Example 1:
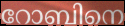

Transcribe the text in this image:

റോബിനെ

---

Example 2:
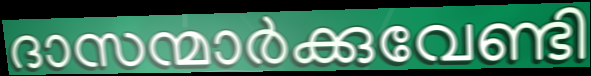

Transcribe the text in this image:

ദാസന്മാർക്കുവേണ്ടി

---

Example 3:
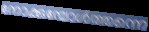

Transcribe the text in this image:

നോക്കുമ്പോൾത്തന്നെ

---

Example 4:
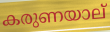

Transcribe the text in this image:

കരുണയാല്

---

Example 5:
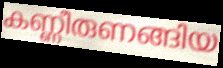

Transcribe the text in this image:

കണ്ണീരുണങ്ങിയ